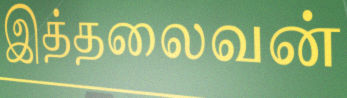
இத்தலைவன்